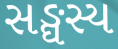
સઙ્ઘસ્ય